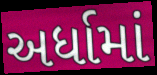
અર્ધામાં